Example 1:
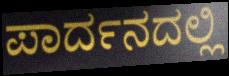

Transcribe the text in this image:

ಪಾರ್ದನದಲ್ಲಿ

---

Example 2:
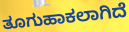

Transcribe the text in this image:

ತೂಗುಹಾಕಲಾಗಿದೆ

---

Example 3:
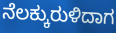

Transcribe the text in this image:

ನೆಲಕ್ಕುರುಳಿದಾಗ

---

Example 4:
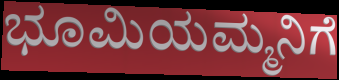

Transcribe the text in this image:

ಭೂಮಿಯಮ್ಮನಿಗೆ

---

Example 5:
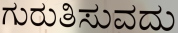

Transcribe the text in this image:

ಗುರುತಿಸುವದು